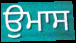
ਉਮਾਸ